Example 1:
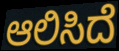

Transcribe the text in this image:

ಆಲಿಸಿದೆ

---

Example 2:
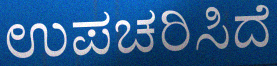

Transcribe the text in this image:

ಉಪಚರಿಸಿದೆ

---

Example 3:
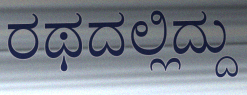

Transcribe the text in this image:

ರಥದಲ್ಲಿದ್ದು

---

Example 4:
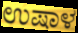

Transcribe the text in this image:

ಉಷಾಳ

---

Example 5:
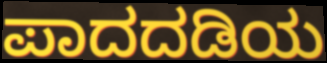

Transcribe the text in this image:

ಪಾದದಡಿಯ